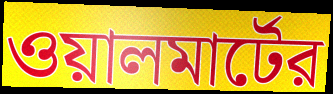
ওয়ালমার্টের